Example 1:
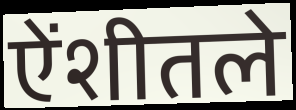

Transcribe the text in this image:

ऐंशीतले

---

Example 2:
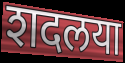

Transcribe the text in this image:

शदलया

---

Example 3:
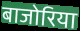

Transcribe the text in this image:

बाजोरिया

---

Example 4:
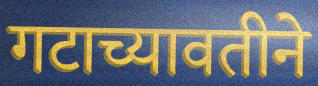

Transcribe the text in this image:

गटाच्यावतीने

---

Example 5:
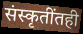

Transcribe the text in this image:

संस्कृतींतही